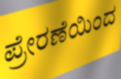
ಪ್ರೇರಣೆಯಿಂದ